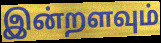
இன்றளவும்